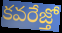
కవరేజ్తో